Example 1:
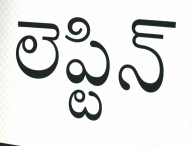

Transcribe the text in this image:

లెప్టిన్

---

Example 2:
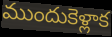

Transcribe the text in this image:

ముందుకెళ్లాక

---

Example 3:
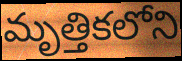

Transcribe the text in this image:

మృత్తికలోని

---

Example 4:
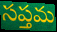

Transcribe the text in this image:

సప్తమ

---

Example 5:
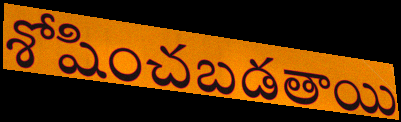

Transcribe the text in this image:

శోషించబడతాయి